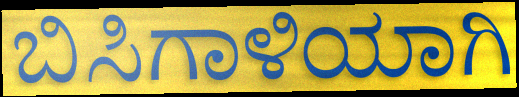
ಬಿಸಿಗಾಳಿಯಾಗಿ